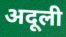
अदूली